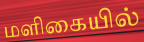
மளிகையில்